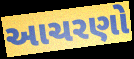
આચરણો